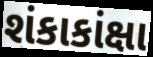
શંકાકાંક્ષા